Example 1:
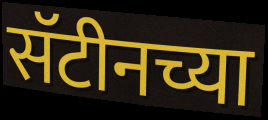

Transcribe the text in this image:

सॅटीनच्या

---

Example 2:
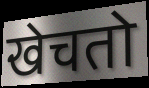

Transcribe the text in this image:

खेचतो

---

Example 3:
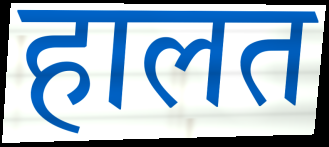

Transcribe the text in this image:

हालत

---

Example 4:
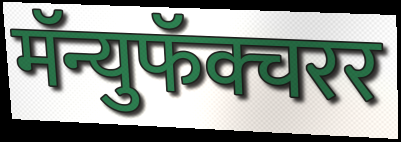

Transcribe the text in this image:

मॅन्युफॅक्चरर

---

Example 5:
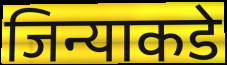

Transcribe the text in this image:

जिन्याकडे